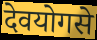
देवयोगसे